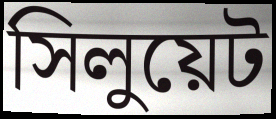
সিলুয়েট